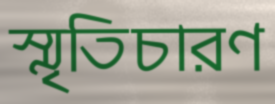
স্মৃতিচারণ